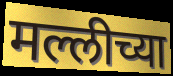
मल्लीच्या